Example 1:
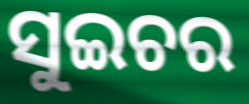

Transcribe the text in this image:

ସୁଇଚର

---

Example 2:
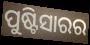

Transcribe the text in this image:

ପୁଷ୍ଟିସାରର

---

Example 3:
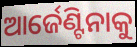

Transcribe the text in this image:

ଆର୍ଜେଣ୍ଟିନାକୁ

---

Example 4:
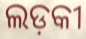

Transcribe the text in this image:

ଲଡ଼କୀ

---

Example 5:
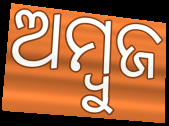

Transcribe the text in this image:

ଅମ୍ବୁଜ